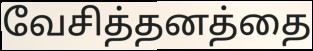
வேசித்தனத்தை